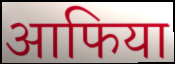
आफिया